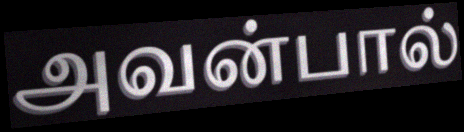
அவன்பால்